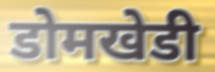
डोमखेडी